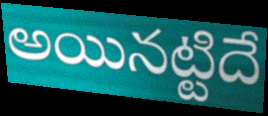
అయినట్టిదే